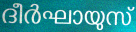
ദീർഘായുസ്